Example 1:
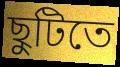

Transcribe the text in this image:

ছুটিতে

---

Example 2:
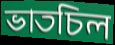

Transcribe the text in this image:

ভাতচিল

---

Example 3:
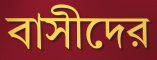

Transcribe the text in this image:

বাসীদের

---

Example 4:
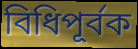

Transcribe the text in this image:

বিধিপূর্বক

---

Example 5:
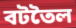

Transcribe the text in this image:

বটতৈল